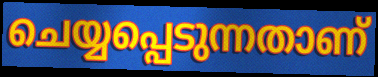
ചെയ്യപ്പെടുന്നതാണ്